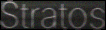
Stratos